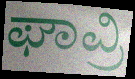
ಘಾವ್ರಿ